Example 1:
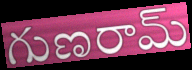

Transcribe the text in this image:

గుణరామ్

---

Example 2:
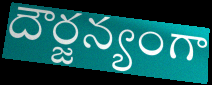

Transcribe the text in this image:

దౌర్జన్యంగా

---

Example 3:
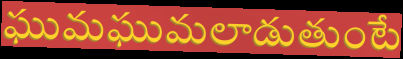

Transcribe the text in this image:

ఘుమఘుమలాడుతుంటే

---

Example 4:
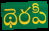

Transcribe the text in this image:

థెరపీ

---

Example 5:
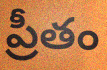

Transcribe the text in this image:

ప్రీతం